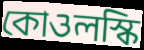
কোওলস্কি